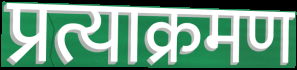
प्रत्याक्रमण